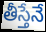
తీస్తేనే